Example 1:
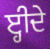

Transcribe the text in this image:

ੲ੍ਹੀਦੇ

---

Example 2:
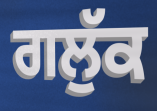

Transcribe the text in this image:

ਗਲੁੱਕ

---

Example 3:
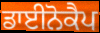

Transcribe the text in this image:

ਡਾਈਨੋਕੈਪ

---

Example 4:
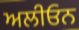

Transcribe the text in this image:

ਅਲੀਓਨ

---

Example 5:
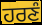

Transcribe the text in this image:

ਹਰਣੰ